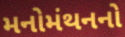
મનોમંથનનો